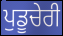
ਪੁਡੂਚੇਰੀ